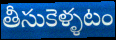
తీసుకెళ్ళటం